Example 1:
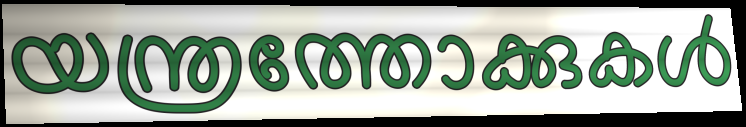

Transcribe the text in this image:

യന്ത്രത്തോക്കുകൾ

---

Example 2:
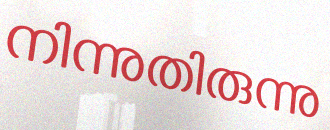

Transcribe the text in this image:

നിന്നുതിരുന്നു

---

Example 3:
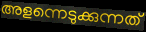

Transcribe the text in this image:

അളന്നെടുക്കുന്നത്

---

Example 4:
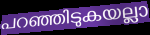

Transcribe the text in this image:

പറഞ്ഞിടുകയല്ലാ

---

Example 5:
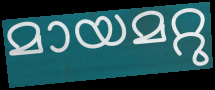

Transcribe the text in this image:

മായമറ്റു